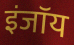
इंजॉय